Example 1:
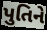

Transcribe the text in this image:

પુતિને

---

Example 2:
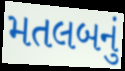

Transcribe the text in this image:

મતલબનું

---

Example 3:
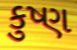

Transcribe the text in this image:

કુષ્ણ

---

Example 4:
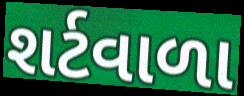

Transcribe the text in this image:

શર્ટવાળા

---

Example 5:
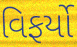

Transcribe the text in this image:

વિફર્યો